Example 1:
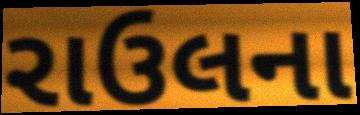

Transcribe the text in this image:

રાઉલના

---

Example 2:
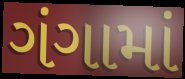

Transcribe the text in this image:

ગંગામાં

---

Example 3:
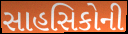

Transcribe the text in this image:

સાહસિકોની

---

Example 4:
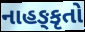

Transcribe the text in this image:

નાહઙ્કૃતો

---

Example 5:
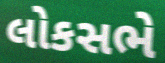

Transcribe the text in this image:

લોકસભે